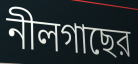
নীলগাছের